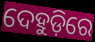
ଦେହୁଡ଼ିରେ